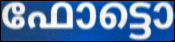
ഫോട്ടൊ